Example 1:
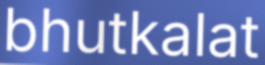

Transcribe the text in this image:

bhutkalat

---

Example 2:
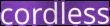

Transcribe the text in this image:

cordless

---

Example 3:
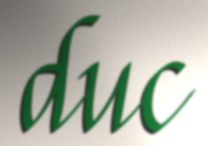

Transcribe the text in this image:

duc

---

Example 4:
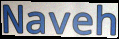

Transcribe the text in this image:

Naveh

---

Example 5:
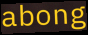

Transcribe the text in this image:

abong